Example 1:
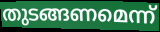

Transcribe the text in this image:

തുടങ്ങണമെന്ന്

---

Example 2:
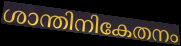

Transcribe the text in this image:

ശാന്തിനികേതനം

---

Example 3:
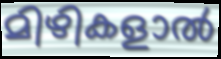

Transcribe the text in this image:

മിഴികളാൽ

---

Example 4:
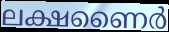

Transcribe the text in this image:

ലക്ഷണൈർ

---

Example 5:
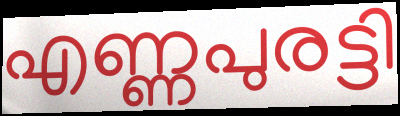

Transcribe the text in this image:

എണ്ണപുരട്ടി